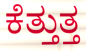
ಕೆತ್ತುತ್ತ